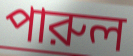
পাৰুল